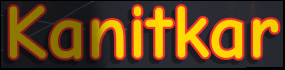
Kanitkar